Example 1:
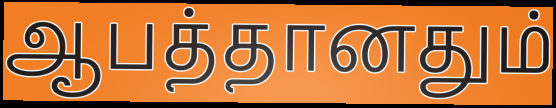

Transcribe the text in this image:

ஆபத்தானதும்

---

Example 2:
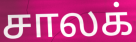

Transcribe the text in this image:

சாலக்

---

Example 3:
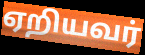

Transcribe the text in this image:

ஏறியவர்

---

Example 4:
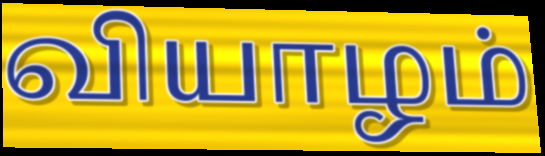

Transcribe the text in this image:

வியாழம்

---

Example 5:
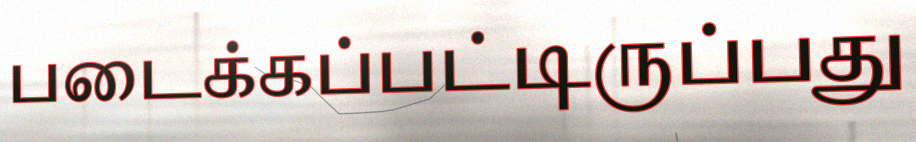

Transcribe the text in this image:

படைக்கப்பட்டிருப்பது